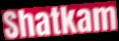
Shatkam